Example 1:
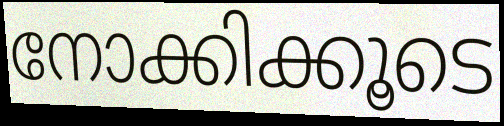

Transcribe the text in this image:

നോക്കിക്കൂടെ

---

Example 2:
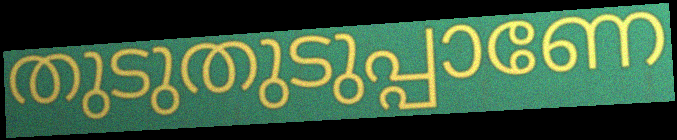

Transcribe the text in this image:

തുടുതുടുപ്പാണേ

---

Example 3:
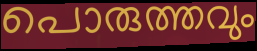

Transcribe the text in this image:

പൊരുത്തവും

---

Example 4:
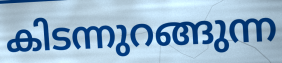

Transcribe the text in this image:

കിടന്നുറങ്ങുന്ന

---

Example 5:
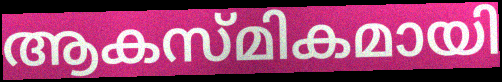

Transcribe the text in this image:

ആകസ്മികമായി